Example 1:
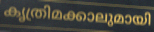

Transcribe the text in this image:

കൃത്രിമക്കാലുമായി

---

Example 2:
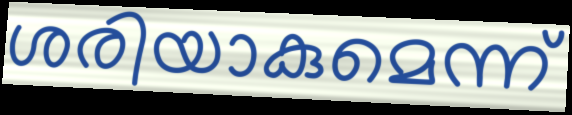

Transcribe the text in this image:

ശരിയാകുമെന്ന്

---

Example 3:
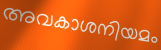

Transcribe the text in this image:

അവകാശനിയമം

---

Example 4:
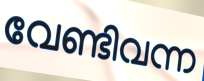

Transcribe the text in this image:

വേണ്ടിവന്ന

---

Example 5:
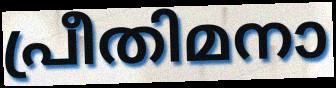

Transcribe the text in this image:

പ്രീതിമനാ